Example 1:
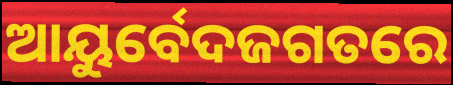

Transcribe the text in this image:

ଆୟୁର୍ବେଦଜଗତରେ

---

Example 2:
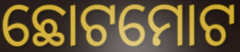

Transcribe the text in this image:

ଛୋଟମୋଟ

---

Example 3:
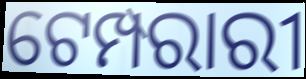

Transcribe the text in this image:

ଟେମ୍ପରାରୀ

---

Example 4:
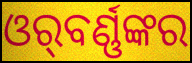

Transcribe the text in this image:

ଓର୍‌ବର୍ଣ୍ଣଙ୍କର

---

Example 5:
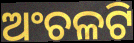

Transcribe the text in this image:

ଅଂଚଳଟି